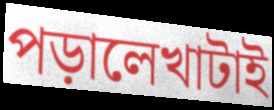
পড়ালেখাটাই